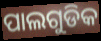
ପାଲଗୁଡିକ